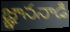
జ్ఞాననాడి